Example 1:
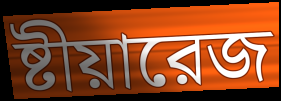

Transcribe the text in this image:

ষ্টীয়ারেজ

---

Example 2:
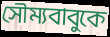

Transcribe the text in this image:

সৌম্যবাবুকে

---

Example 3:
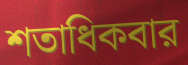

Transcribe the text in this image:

শতাধিকবার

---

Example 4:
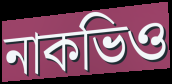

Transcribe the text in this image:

নাকভিও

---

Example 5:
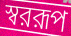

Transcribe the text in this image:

স্বররূপ